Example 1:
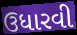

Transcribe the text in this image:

ઉધારવી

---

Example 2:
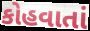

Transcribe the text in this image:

કોહવાતાં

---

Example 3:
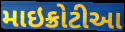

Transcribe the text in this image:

માઇક્રોટીઆ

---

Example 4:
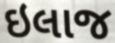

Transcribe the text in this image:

ઇલાજ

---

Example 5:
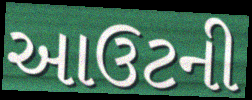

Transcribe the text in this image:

આઉટની